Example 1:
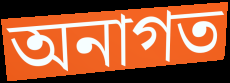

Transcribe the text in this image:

অনাগত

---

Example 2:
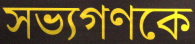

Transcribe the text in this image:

সভ্যগণকে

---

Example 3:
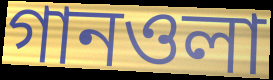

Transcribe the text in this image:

গানওলা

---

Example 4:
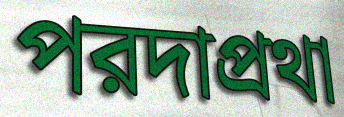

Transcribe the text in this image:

পরদাপ্রথা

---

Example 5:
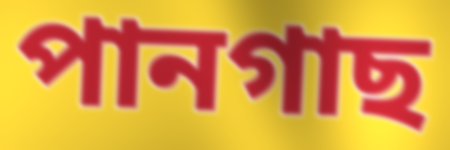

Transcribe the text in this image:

পানগাছ